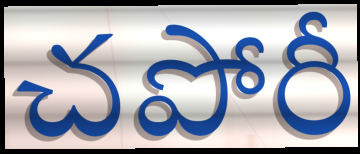
చపోరీ